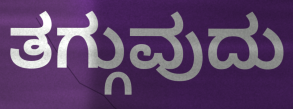
ತಗ್ಗುವುದು